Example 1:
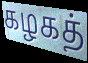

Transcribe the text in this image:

கழகத்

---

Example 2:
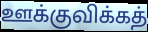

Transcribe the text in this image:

ஊக்குவிக்கத்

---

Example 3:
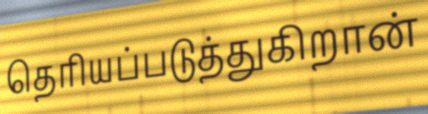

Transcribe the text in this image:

தெரியப்படுத்துகிறான்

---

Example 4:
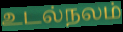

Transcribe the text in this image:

உடல்நலம்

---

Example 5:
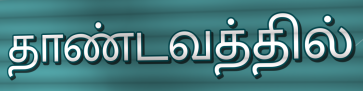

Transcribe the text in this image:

தாண்டவத்தில்